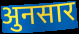
अुनसार